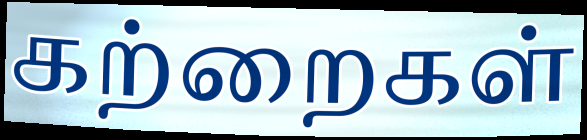
கற்றைகள்